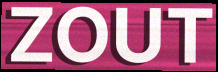
ZOUT